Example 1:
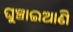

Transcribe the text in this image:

ଘୁଞ୍ଚାଇଆଣି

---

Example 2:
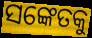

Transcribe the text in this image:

ସଙ୍କେତକୁ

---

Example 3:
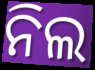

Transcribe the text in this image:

ନିଲ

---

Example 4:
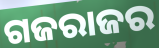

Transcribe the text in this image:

ଗଜରାଜର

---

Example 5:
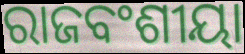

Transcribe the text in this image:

ରାଜବଂଶୀୟା